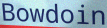
Bowdoin